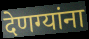
देणग्यांना